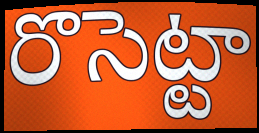
రొసెట్టా